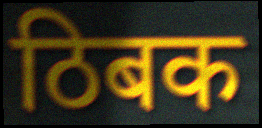
ठिबक